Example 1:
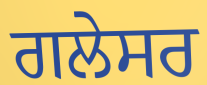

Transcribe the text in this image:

ਗਲੇਸਰ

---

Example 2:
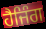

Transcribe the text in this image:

ਹੈਜਿੰਗ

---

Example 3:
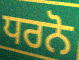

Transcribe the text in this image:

ਧਰਨੋ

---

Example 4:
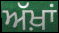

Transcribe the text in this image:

ਅੱਖ਼ਾਂ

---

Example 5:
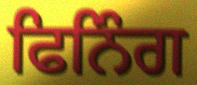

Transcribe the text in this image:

ਫਿਨਿੰਗ